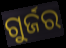
ଗୁର୍ଜର